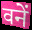
वनें